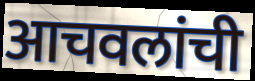
आचवलांची